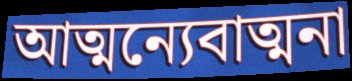
আত্মন্যেবাত্মনা